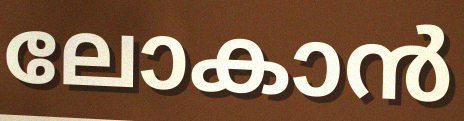
ലോകാൻ